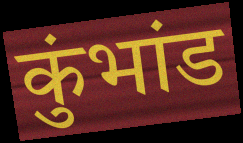
कुंभांड